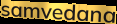
samvedana